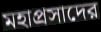
মহাপ্রসাদের